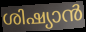
ശിഷ്യാൻ